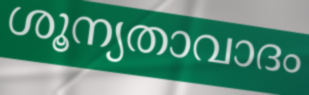
ശൂന്യതാവാദം